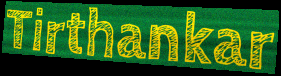
Tirthankar